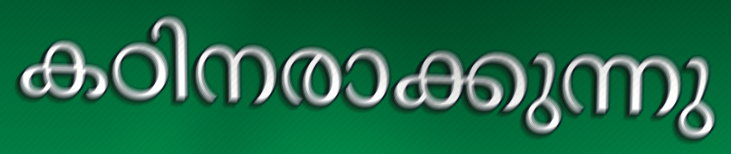
കഠിനരാക്കുന്നു